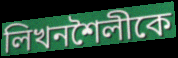
লিখনশৈলীকে